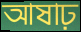
আষাঢ়